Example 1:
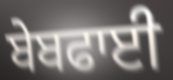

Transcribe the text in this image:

ਬੇਬਫਾਈ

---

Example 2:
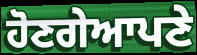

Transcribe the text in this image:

ਹੋਣਗੇਆਪਣੇ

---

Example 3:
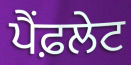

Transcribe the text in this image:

ਪੈਂਫ਼ਲੇਟ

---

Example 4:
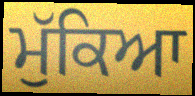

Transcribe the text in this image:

ਮੁੱਕਿਆ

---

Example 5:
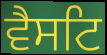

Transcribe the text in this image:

ਵੈਸਟਿ